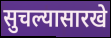
सुचल्यासारखे